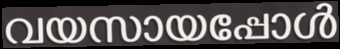
വയസായപ്പോൾ